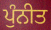
ਪੁੰਨੀਤ